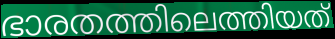
ഭാരതത്തിലെത്തിയത്